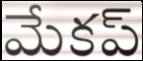
మేకప్